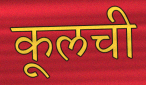
कूलची